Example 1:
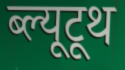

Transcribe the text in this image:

ब्ल्यूटूथ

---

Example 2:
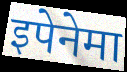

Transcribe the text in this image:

इपेनेमा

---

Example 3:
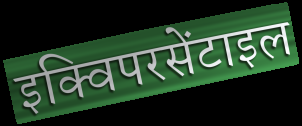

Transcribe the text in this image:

इक्विपरसेंटाइल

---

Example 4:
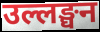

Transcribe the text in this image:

उल्लङ्घन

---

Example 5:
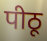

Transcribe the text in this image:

पीठू